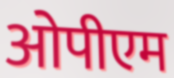
ओपीएम